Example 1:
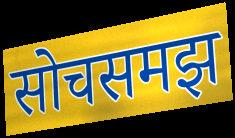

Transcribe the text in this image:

सोचसमझ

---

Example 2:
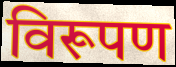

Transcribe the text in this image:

विरूपण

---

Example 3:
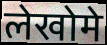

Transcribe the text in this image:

लेखोमे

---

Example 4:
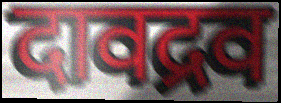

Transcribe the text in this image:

दावद्रव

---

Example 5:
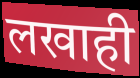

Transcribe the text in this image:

लखाही